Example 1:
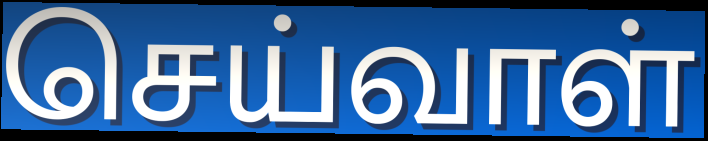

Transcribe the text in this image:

செய்வாள்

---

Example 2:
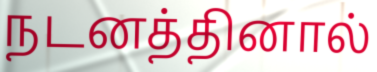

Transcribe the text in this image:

நடனத்தினால்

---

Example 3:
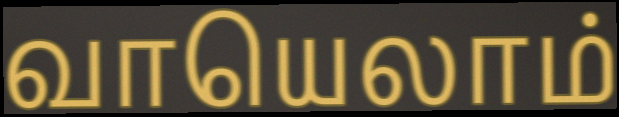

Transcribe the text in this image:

வாயெலாம்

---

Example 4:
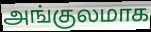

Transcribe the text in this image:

அங்குலமாக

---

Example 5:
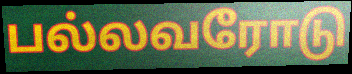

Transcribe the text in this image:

பல்லவரோடு